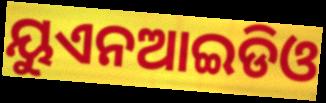
ୟୁଏନଆଇଡିଓ